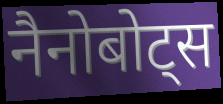
नैनोबोट्स